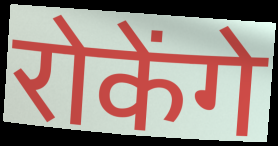
रोकेंगे